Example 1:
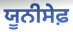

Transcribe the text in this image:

ਯੂਨੀਸੇਫ਼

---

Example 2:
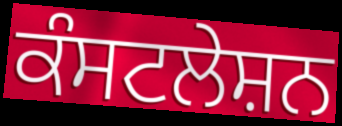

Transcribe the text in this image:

ਕੰਸਟਲੇਸ਼ਨ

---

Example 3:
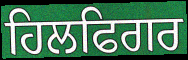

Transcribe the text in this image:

ਹਿਲਫਿਗਰ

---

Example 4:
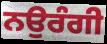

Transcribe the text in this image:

ਨਉਰੰਗੀ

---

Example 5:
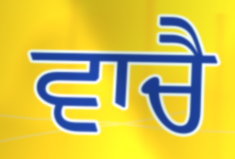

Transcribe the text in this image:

ਵਾਚੈ